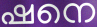
ഷനെ